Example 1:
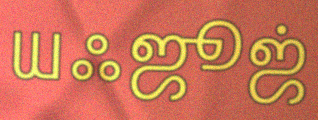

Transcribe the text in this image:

யஃஜூஜ்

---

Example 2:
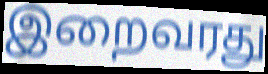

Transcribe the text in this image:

இறைவரது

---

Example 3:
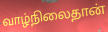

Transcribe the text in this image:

வாழ்நிலைதான்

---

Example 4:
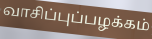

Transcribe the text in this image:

வாசிப்புப்பழக்கம்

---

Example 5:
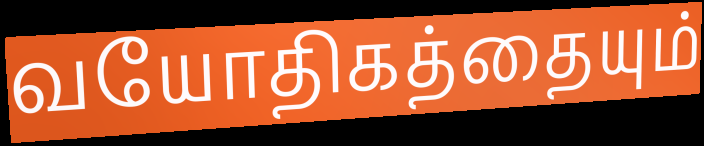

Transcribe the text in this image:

வயோதிகத்தையும்